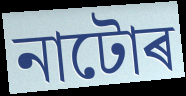
নাটোৰ